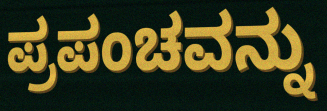
ಪ್ರಪಂಚವನ್ನು